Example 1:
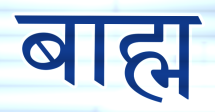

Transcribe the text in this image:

बाह्म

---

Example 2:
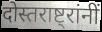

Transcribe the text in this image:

दोस्तराष्ट्रांनीं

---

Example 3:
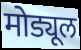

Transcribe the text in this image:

मोड्यूल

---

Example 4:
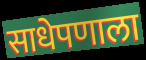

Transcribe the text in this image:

साधेपणाला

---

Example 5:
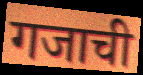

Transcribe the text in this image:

गजाची